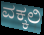
ವಕ್ಕಲಿ